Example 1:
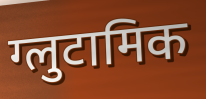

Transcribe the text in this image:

ग्लुटामिक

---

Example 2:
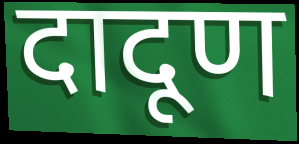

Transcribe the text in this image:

दादूण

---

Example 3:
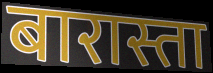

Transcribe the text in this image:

बारास्ता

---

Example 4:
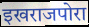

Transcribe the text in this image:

इखराजपोरा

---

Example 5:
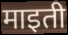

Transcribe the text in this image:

माइती